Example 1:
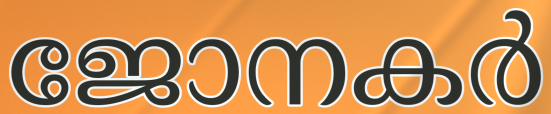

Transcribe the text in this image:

ജോനകർ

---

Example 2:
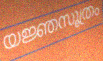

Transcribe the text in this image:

യജ്ഞസൂത്രം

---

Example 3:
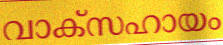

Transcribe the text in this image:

വാക്സഹായം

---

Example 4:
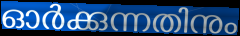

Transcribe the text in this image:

ഓർക്കുന്നതിനും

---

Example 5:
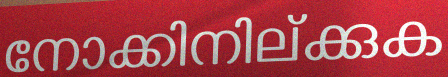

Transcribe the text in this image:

നോക്കിനില്ക്കുക